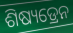
ଶିଷ୍ୟଡ୍ରେନ